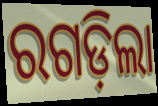
ରଗଡ଼ିଲା